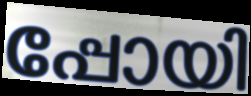
പ്പോയി